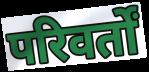
परिवर्तों